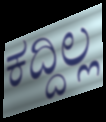
ಕದ್ದಿಲ್ಲ